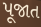
પૂજાત